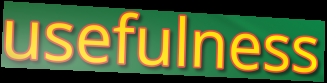
usefulness